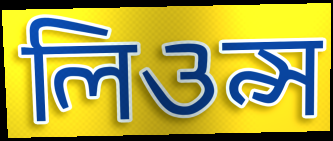
লিওন্স